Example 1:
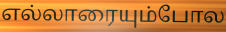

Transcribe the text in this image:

எல்லாரையும்போல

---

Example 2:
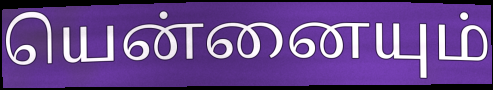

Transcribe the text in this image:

யென்னையும்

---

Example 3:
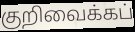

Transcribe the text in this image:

குறிவைக்கப்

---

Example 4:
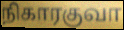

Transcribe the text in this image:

நிகாரகுவா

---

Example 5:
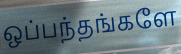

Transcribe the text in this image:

ஒப்பந்தங்களே